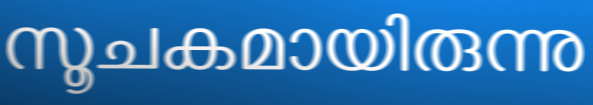
സൂചകമായിരുന്നു